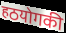
हठयोगकी